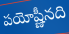
పయోష్ణీనది